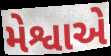
મેશ્વાએ